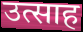
उत्साह